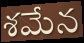
శమేన